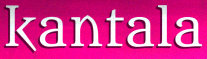
kantala